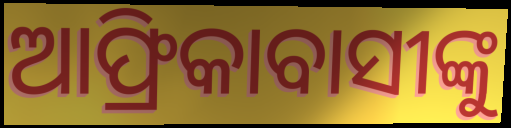
ଆଫ୍ରିକାବାସୀଙ୍କୁ